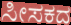
ಸೀಸಕದ